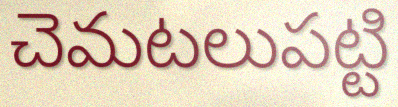
చెమటలుపట్టి